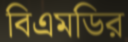
বিএমডির